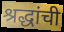
श्रद्धांची